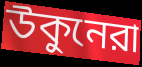
উকুনেরা